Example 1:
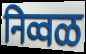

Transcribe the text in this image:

निव्‍वळ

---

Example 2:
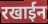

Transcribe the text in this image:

रखाईन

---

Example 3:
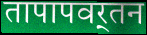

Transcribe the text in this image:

तापापवर्तन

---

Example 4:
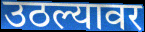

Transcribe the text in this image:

उठल्यावर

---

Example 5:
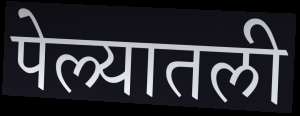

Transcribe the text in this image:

पेल्यातली